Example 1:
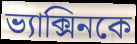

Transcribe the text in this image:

ভ্যাক্সিনকে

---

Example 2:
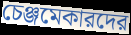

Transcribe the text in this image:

চেঞ্জমেকারদের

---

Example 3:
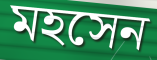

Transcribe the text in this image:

মহসেন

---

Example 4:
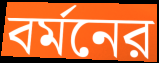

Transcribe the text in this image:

বর্মনের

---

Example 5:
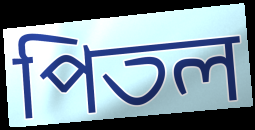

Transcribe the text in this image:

পিতল